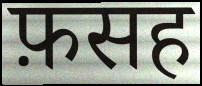
फ़सह